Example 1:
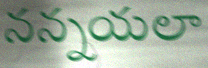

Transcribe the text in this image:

నన్నయలా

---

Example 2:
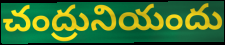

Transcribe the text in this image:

చంద్రునియందు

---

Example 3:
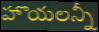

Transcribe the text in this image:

హొయలన్నీ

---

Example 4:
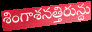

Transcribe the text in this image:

శింగాశనత్తిరున్దు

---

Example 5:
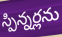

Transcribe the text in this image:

స్పిన్నర్లను